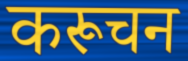
करूचन